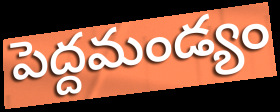
పెద్దమండ్యం